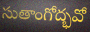
సుతాంగోద్భవో